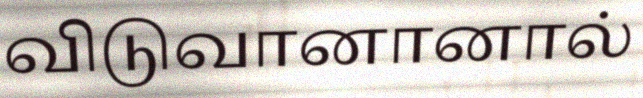
விடுவானானால்